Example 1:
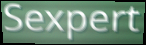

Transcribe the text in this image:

Sexpert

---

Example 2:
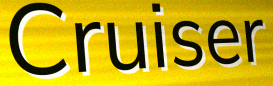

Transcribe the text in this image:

Cruiser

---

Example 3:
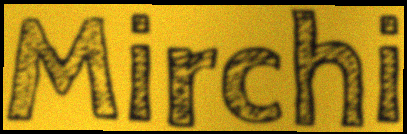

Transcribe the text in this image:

Mirchi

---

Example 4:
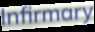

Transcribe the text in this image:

Infirmary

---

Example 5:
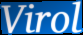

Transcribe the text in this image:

Virol